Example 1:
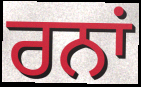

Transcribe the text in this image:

ਰਨਾਂ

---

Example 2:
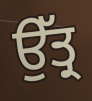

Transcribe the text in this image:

ਉੱਤ੍ਰ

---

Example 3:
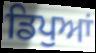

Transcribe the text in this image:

ਡਿਪੁਆਂ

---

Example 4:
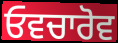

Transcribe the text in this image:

ਓਵਚਾਰੋਵ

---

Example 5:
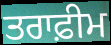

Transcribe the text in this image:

ਤਰਾਫ਼ੀਮ